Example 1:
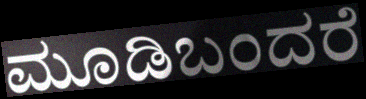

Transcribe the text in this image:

ಮೂಡಿಬಂದರೆ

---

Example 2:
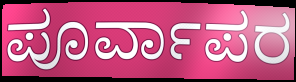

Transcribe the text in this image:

ಪೂರ್ವಾಪರ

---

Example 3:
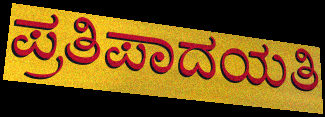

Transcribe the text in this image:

ಪ್ರತಿಪಾದಯತಿ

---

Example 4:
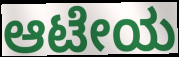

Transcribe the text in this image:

ಆಟೇಯ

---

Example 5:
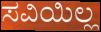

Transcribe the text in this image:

ಸವಿಯಿಲ್ಲ